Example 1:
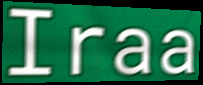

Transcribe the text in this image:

Iraa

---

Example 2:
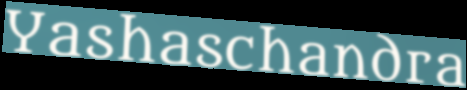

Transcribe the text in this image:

Yashaschandra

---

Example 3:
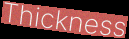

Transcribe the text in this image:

Thickness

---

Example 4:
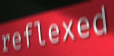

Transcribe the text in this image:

reflexed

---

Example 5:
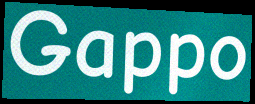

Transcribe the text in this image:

Gappo